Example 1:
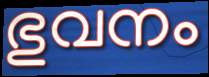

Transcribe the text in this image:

ഭുവനം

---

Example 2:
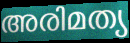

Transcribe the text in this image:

അരിമത്യ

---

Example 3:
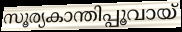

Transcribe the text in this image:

സൂര്യകാന്തിപ്പൂവായ്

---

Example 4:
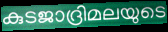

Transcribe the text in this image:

കുടജാദ്രിമലയുടെ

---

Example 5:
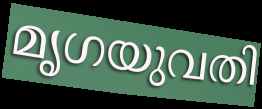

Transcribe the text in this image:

മൃഗയുവതി